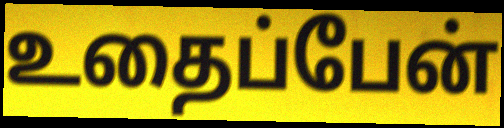
உதைப்பேன்